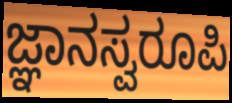
ಜ್ಞಾನಸ್ವರೂಪಿ